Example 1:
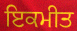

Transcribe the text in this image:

ਇਕਮੀਤ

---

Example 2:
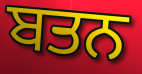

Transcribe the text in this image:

ਬਤਨ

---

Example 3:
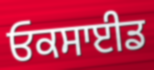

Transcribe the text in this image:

ਓਕਸਾਈਡ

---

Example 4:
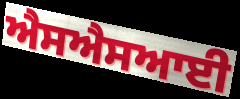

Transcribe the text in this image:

ਐਸਐਸਆਈ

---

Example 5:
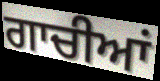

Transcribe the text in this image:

ਗਾਚੀਆਂ